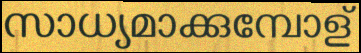
സാധ്യമാക്കുമ്പോള്